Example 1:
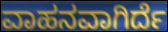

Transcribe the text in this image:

ವಾಹನವಾಗಿರ್ದೆ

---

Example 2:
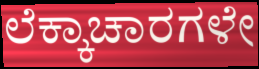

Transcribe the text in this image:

ಲೆಕ್ಕಾಚಾರಗಳೇ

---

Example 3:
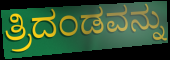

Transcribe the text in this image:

ತ್ರಿದಂಡವನ್ನು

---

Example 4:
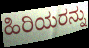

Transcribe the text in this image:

ಹಿರಿಯರನ್ನು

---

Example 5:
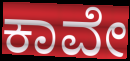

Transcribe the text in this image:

ಕಾವೇ